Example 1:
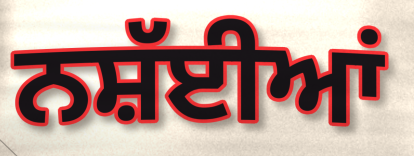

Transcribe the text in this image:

ਨਸ਼ੱਈਆਂ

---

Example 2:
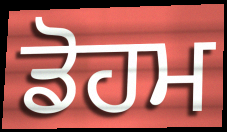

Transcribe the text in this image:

ਡੋਹਮ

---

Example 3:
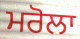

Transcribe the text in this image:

ਮਰੋਲਾ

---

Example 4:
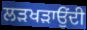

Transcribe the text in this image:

ਲੜਖੜਾਉਂਦੀ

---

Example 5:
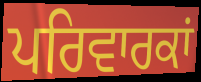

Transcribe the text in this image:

ਪਰਿਵਾਰਕਾਂ